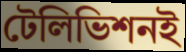
টেলিভিশনই